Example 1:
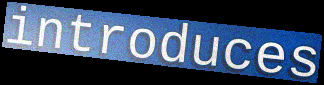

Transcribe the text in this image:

introduces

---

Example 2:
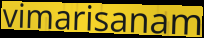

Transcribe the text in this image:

vimarisanam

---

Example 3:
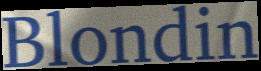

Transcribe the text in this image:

Blondin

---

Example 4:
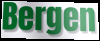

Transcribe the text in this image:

Bergen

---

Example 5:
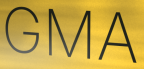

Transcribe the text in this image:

GMA